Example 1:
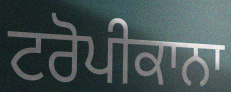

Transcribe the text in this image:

ਟਰੋਪੀਕਾਨਾ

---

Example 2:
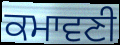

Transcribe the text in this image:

ਕਮਾਵਣੀ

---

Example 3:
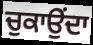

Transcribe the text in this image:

ਚੁਕਾਉਂਦਾ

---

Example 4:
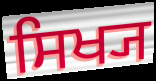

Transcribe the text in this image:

ਸਿਖ੍ਯ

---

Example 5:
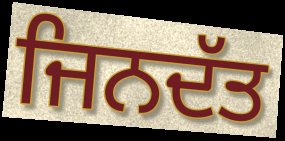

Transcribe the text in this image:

ਜਿਨਦੱਤ